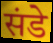
संडे